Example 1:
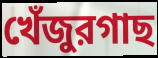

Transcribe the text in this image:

খেঁজুরগাছ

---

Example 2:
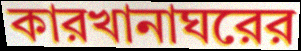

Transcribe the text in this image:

কারখানাঘরের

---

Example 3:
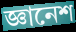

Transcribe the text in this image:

জ্ঞানেশ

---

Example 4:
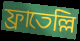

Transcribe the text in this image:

ফ্রাতেল্লি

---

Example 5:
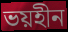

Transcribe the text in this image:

ভয়হীন